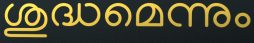
ശുദ്ധമെന്നും